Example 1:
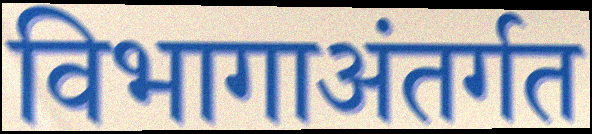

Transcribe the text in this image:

विभागाअंतर्गत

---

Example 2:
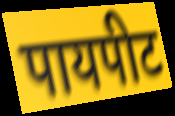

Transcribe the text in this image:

पायपीट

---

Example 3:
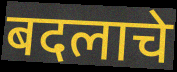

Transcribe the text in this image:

बदलाचे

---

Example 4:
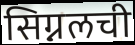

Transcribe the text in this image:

सिग्नलची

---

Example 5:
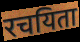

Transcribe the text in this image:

रचयिता